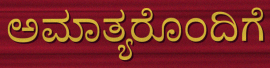
ಅಮಾತ್ಯರೊಂದಿಗೆ